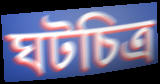
ঘটচিত্র